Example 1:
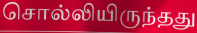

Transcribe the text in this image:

சொல்லியிருந்தது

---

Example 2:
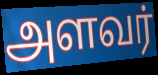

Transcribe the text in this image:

அளவர்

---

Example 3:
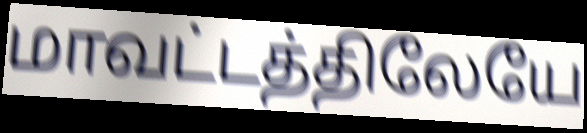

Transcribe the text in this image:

மாவட்டத்திலேயே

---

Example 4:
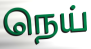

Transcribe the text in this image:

நெய்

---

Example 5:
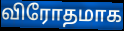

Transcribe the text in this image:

விரோதமாக